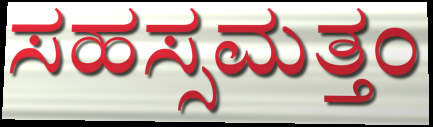
ಸಹಸ್ಸಮತ್ತಂ